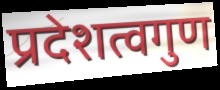
प्रदेशत्वगुण